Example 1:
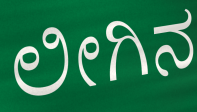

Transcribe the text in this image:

ಲೀಗಿನ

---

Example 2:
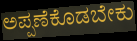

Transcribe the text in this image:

ಅಪ್ಪಣೆಕೊಡಬೇಕು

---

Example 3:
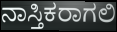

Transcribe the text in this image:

ನಾಸ್ತಿಕರಾಗಲಿ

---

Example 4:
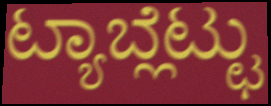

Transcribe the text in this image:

ಟ್ಯಾಬ್ಲೆಟ್ಟು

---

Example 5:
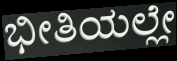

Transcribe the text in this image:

ಭೀತಿಯಲ್ಲೇ